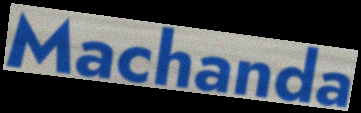
Machanda